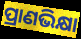
ପ୍ରାଣଭିକ୍ଷା